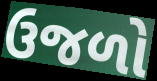
ઉજળો